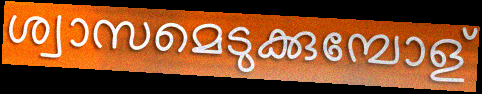
ശ്വാസമെടുക്കുമ്പോള്